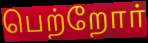
பெற்றோர்